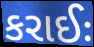
કરાઈઃ